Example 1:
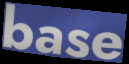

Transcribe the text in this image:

base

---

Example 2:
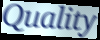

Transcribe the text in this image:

Quality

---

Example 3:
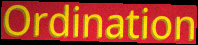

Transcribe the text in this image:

Ordination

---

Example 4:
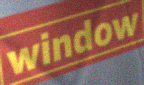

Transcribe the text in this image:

window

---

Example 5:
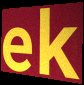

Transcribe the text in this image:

ek